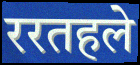
ररतहले